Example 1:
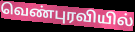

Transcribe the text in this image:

வெண்புரவியில்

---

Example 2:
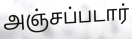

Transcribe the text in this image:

அஞ்சப்படார்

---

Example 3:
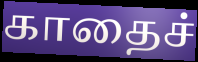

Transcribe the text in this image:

காதைச்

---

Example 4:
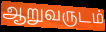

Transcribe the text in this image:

ஆறுவருடம்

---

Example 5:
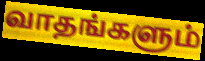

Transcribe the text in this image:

வாதங்களும்